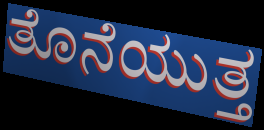
ತೊನೆಯುತ್ತ